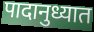
पादानुध्यात